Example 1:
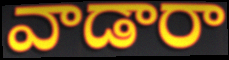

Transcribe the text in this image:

వాడారా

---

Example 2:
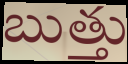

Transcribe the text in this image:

బుత్తు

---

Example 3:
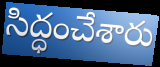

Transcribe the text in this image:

సిద్ధంచేశారు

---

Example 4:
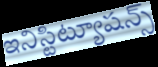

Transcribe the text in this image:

ఇనిస్టిట్యూషన్స్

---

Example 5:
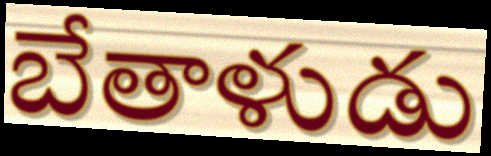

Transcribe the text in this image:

బేతాళుడు